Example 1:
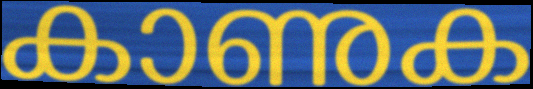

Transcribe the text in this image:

കാണുക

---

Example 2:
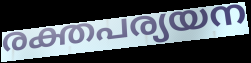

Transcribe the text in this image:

രക്തപര്യയന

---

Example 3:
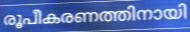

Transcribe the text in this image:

രൂപീകരണത്തിനായി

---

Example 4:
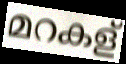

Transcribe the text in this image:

മറകള്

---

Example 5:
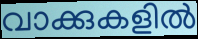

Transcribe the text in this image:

വാക്കുകളിൽ